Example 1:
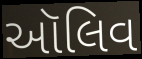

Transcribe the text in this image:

ઑલિવ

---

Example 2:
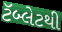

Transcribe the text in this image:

ટૅબ્લેટથી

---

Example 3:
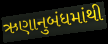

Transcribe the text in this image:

ઋણાનુબંધમાંથી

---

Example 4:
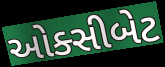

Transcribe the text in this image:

ઓક્સીબેટ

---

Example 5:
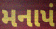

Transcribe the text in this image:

મનાપં